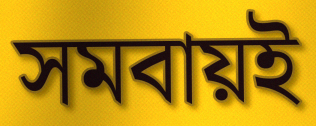
সমবায়ই